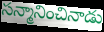
సన్మానించినాడు